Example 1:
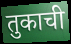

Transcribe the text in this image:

तुकाची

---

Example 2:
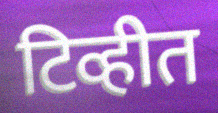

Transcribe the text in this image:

टिव्हीत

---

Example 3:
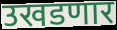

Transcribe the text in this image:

उखडणार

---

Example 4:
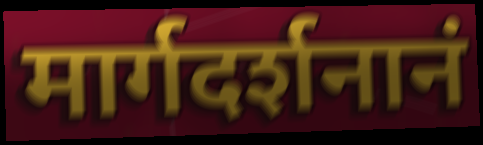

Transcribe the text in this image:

मार्गदर्शनानं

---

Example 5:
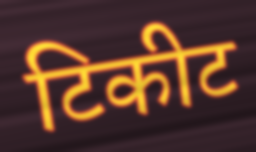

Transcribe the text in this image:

टिकीट